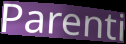
Parenti